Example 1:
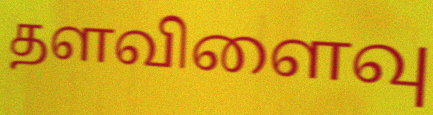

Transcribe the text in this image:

தளவிளைவு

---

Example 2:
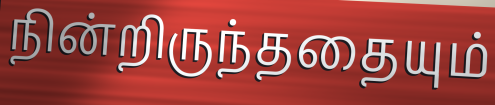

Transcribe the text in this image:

நின்றிருந்ததையும்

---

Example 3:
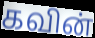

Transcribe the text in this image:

கவின்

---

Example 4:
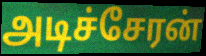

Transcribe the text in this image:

அடிச்சேரன்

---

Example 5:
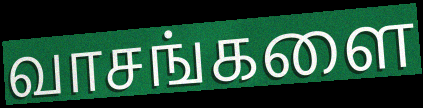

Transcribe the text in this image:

வாசங்களை